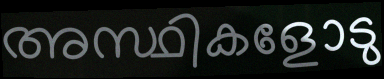
അസ്ഥികളോടു